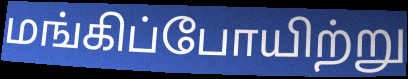
மங்கிப்போயிற்று